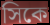
সিকে